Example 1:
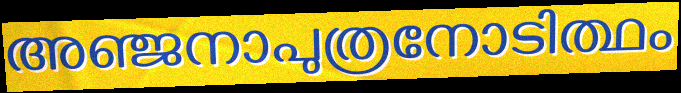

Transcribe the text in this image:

അഞ്ജനാപുത്രനോടിത്ഥം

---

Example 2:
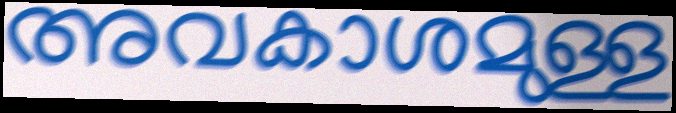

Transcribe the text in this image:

അവകാശമുള്ള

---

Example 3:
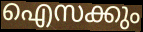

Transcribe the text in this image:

ഐസക്കും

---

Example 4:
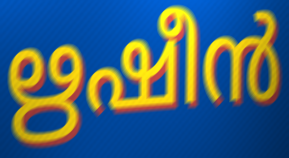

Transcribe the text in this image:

ഋഷീൻ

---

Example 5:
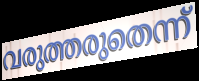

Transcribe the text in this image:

വരുത്തരുതെന്ന്